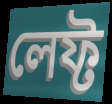
লেফ্ট